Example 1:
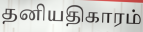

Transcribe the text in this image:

தனியதிகாரம்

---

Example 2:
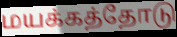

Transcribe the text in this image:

மயக்கத்தோடு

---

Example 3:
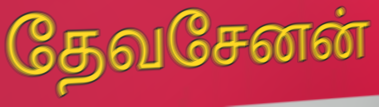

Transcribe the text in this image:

தேவசேனன்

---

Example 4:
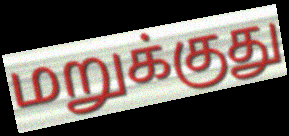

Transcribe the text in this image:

மறுக்குது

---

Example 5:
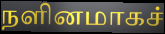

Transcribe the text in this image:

நளினமாகச்